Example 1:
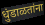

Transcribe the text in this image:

धुंडाळतांना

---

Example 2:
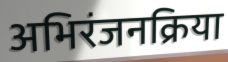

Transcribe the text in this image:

अभिरंजनक्रिया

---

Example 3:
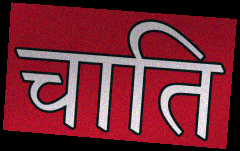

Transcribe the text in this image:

चाति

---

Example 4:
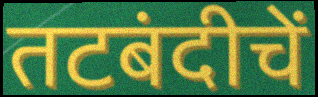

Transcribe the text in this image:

तटबंदीचें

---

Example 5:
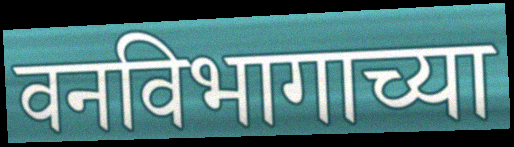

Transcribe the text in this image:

वनविभागाच्या